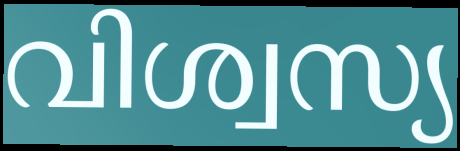
വിശ്വസ്യ